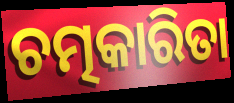
ଚତ୍ମକାରିତା